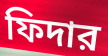
ফিদার